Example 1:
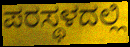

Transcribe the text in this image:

ಪರಸ್ಥಳದಲ್ಲಿ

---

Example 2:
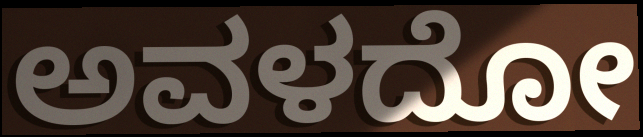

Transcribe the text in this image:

ಅವಳದೋ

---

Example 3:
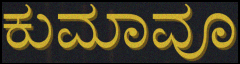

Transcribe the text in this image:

ಕುಮಾವೂ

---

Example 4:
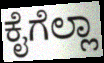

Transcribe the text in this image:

ಕೈಗೆಲ್ಲಾ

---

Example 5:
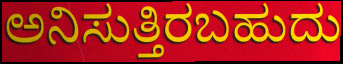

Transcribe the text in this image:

ಅನಿಸುತ್ತಿರಬಹುದು